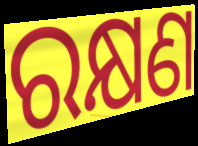
ରକ୍ଷଣ